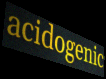
acidogenic